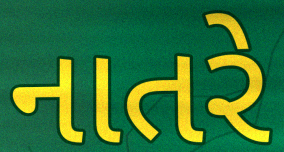
નાતરે